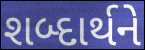
શબ્દાર્થને